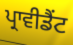
ਪ੍ਰਾਵੀਡੈਂਟ